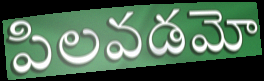
పిలవడమో